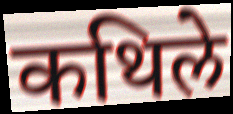
कथिले